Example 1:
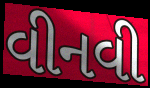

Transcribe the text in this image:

વીનવી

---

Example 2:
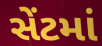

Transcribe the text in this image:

સેંટમાં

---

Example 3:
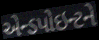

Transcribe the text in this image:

એન્ડપોઇન્ટને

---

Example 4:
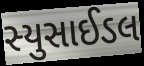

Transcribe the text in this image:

સ્યુસાઈડલ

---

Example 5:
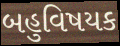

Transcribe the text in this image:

બહુવિષયક